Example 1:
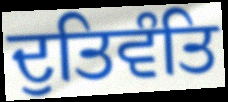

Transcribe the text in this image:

ਦੁਤਿਵੰਤਿ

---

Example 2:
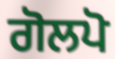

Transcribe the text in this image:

ਗੋਲਪੋ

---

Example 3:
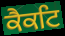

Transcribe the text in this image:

ਕੈਕਟਿ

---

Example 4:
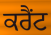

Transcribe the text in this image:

ਕਰੈਂਟ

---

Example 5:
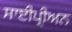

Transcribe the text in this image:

ਸਾਈਪ੍ਰੀਅਨ